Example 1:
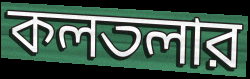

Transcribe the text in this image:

কলতলার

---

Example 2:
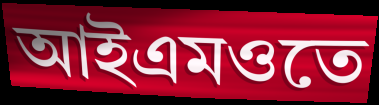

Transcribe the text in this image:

আইএমওতে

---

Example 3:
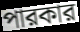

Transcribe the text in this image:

পারকার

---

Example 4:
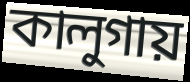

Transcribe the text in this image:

কালুগায়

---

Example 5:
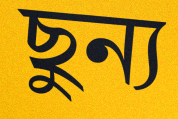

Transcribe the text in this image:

ছুন্য